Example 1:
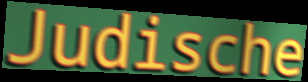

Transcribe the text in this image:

Judische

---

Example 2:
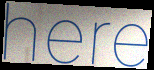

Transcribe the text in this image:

here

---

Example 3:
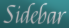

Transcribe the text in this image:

Sidebar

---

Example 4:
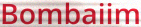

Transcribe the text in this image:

Bombaiim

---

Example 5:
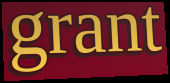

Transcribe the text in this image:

grant